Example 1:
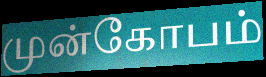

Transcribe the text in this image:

முன்கோபம்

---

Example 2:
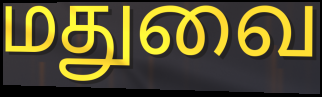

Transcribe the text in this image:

மதுவை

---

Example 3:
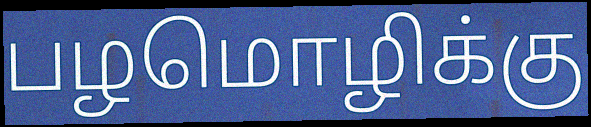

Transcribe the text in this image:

பழமொழிக்கு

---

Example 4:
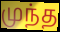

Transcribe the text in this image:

முந்த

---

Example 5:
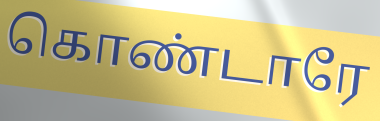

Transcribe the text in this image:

கொண்டாரே